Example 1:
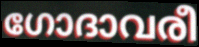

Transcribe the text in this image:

ഗോദാവരീ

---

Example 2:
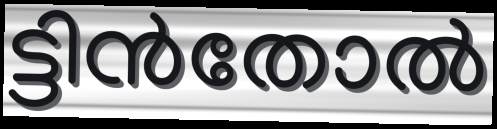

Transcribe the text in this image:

ട്ടിൻതോൽ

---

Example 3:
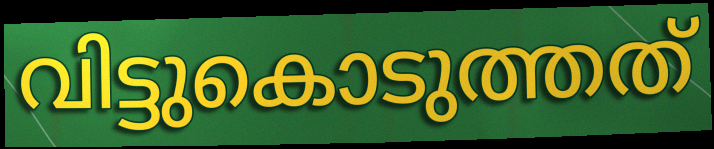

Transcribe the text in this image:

വിട്ടുകൊടുത്തത്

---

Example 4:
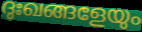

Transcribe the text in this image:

ദുഃഖങ്ങളേയും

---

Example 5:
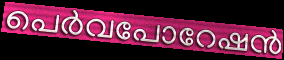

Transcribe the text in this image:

പെർവപോറേഷൻ